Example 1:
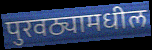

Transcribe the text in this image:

पुरवठ्यामधील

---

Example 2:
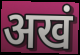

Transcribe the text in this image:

अखं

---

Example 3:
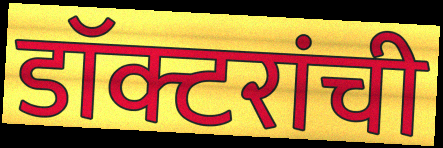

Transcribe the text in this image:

डॉक्टरांची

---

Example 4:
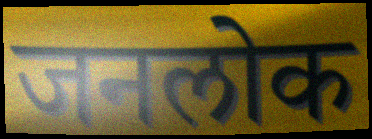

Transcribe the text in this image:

जनलोक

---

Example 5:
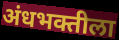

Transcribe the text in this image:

अंधभक्तीला